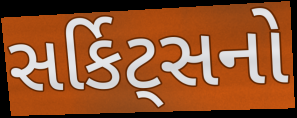
સર્કિટ્સનો